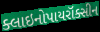
ક્લાઇનોપાયરૉક્સીન